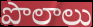
పొలాలు